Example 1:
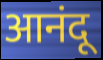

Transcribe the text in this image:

आनंदू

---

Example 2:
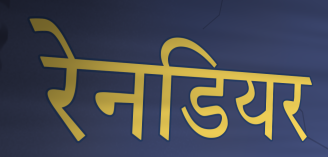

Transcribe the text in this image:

रेनडियर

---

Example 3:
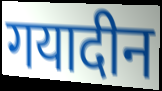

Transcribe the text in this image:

गयादीन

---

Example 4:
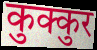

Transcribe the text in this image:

कुक्कुर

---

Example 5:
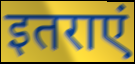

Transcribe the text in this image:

इतराएं